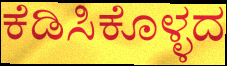
ಕೆಡಿಸಿಕೊಳ್ಳದ